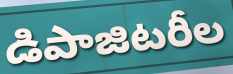
డిపాజిటరీల